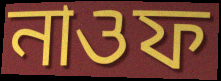
নাওফ